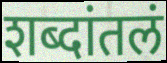
शब्दांतलं